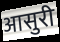
आसुरी